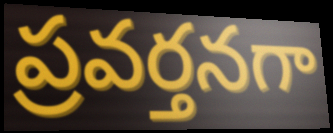
ప్రవర్తనగా